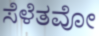
ಸೆಳೆತವೋ